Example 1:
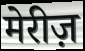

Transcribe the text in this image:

मेरीज़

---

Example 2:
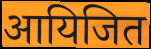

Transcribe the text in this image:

आयिजित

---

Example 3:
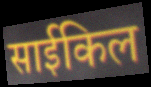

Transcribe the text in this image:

साईकिल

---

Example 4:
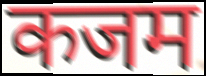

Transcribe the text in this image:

कजम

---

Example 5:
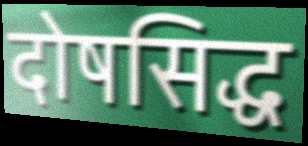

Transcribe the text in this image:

दोषसिद्ध